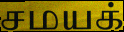
சமயக்